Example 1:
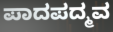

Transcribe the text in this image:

ಪಾದಪದ್ಮವ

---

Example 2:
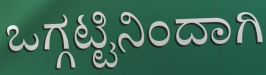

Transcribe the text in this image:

ಒಗ್ಗಟ್ಟಿನಿಂದಾಗಿ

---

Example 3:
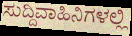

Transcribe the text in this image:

ಸುದ್ದಿವಾಹಿನಿಗಳಲ್ಲಿ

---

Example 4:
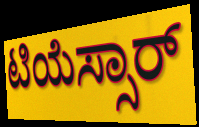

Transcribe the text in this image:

ಟಿಯೆಸ್ಸಾರ್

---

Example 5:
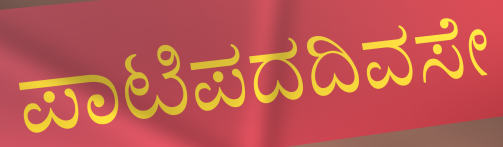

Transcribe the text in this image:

ಪಾಟಿಪದದಿವಸೇ